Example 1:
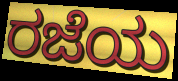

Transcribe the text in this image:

ರಜೆಯ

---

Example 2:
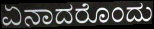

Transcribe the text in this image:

ಏನಾದರೊಂದು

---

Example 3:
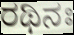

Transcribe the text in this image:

ರಥಿನಃ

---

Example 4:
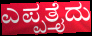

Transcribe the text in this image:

ಎಪ್ಪತ್ತೈದು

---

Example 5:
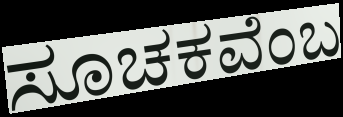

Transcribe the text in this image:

ಸೂಚಕವೆಂಬ